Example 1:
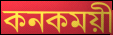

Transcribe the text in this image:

কনকময়ী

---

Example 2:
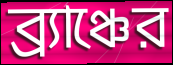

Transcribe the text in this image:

ব্র্যাঞ্চের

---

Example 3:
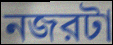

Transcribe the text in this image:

নজরটা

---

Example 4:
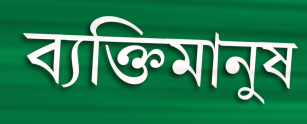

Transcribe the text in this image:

ব্যক্তিমানুষ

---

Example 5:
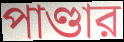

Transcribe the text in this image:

পাণ্ডার